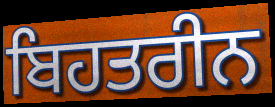
ਬਿਹਤਰੀਨ